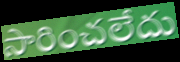
సారించలేదు